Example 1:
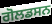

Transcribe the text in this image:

ਗੋਲਡਸਨ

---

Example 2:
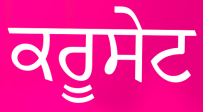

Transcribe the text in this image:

ਕਰੂਸੇਟ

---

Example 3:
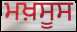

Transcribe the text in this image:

ਮਖ਼ਸੂਸ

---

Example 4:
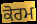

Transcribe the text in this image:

ਕੋਰਮ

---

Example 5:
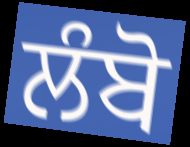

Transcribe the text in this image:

ਲੰਬੋ